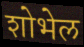
शोभेल